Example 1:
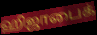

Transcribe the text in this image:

ஹிஜாபைக்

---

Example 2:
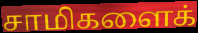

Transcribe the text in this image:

சாமிகளைக்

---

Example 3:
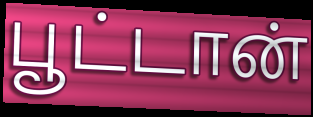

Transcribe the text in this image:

பூட்டான்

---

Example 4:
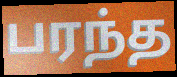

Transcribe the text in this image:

பரந்த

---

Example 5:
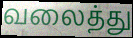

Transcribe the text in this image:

வலைத்து